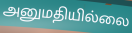
அனுமதியில்லை